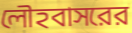
লৌহবাসরের